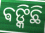
ଵଙ୍କିଛି